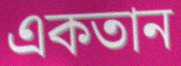
একতান